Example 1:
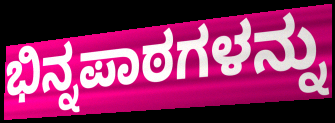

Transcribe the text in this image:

ಭಿನ್ನಪಾಠಗಳನ್ನು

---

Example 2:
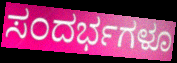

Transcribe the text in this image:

ಸಂದರ್ಭಗಳೂ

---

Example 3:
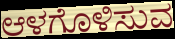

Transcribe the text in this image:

ಆಳಗೊಳಿಸುವ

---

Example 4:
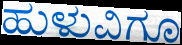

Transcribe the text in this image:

ಹುಳುವಿಗೂ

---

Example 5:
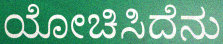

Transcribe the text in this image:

ಯೋಚಿಸಿದೆನು